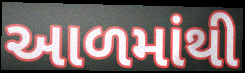
આળમાંથી